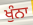
ਖੁੰਨਾ